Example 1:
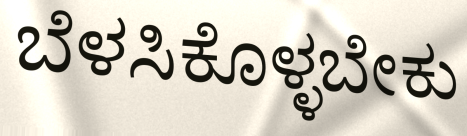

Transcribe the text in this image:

ಬೆಳಸಿಕೊಳ್ಳಬೇಕು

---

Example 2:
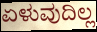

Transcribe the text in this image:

ಏಳುವುದಿಲ್ಲ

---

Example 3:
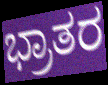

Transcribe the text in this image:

ಭ್ರಾತರ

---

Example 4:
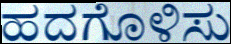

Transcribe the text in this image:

ಹದಗೊಳಿಸು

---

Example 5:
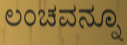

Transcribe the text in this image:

ಲಂಚವನ್ನೂ